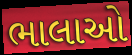
ભાલાઓ